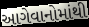
આગેવાનોમાંથી